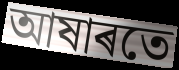
আষাৰতে